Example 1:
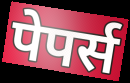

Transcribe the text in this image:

पेपर्स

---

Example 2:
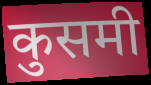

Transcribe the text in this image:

कुसमी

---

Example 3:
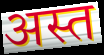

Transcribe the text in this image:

अस्त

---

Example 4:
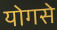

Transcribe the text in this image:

योगसे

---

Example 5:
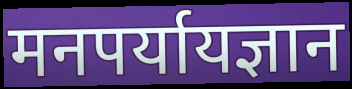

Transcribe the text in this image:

मनपर्यायज्ञान